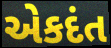
એકદંત